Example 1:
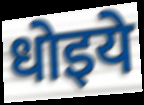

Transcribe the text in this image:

धोइये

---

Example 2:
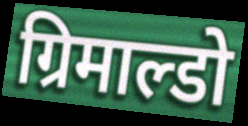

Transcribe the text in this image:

ग्रिमाल्डो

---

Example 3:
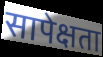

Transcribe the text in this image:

सापेक्षता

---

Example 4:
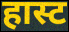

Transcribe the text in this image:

हास्ट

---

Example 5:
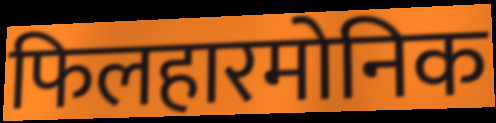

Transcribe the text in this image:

फिलहारमोनिक